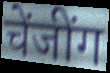
चेंजींग